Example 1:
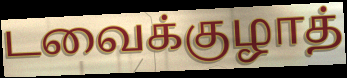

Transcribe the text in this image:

டவைக்குழாத்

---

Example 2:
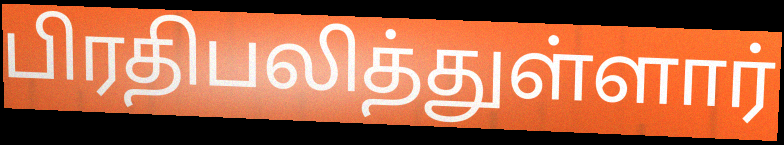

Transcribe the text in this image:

பிரதிபலித்துள்ளார்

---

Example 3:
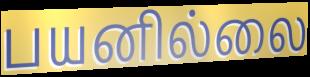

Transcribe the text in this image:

பயனில்லை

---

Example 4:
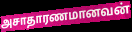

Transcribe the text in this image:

அசாதாரணமானவன்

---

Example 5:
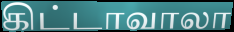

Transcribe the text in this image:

கிட்டாவாலா